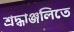
শ্রদ্ধাঞ্জলিতে